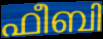
ഫീബി